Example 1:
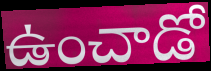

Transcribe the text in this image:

ఉంచాడో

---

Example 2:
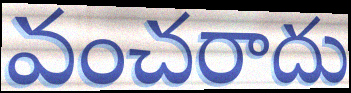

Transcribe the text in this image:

వంచరాదు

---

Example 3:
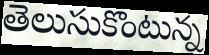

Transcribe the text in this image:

తెలుసుకొంటున్న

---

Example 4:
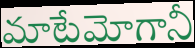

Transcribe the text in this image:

మాటేమోగానీ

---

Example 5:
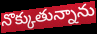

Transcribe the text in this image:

నొక్కుతున్నాను